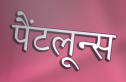
पैंटलून्स